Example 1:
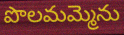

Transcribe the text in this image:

పొలమమ్మెను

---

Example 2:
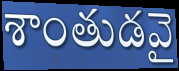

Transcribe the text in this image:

శాంతుడవై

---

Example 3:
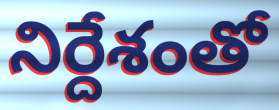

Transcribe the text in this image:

నిర్దేశంతో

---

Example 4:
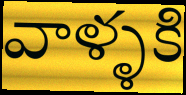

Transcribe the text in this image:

వాళ్ళకి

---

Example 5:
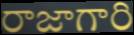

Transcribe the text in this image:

రాజాగారి